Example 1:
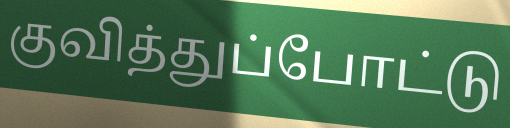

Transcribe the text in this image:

குவித்துப்போட்டு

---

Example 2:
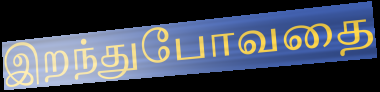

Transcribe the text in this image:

இறந்துபோவதை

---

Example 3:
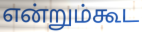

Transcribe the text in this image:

என்றும்கூட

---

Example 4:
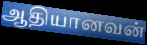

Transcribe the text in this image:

ஆதியானவன்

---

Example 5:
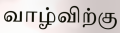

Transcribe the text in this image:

வாழ்விற்கு